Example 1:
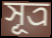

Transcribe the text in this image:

সূত্র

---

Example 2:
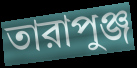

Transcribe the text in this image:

তারাপুঞ্জ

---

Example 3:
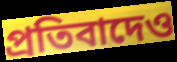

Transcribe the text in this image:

প্রতিবাদেও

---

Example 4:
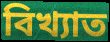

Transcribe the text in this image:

বিখ্যাত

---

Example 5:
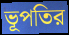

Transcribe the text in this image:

ভূপতির